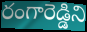
రంగారెడ్డిని